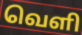
வெளி